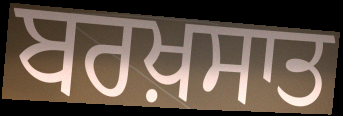
ਬਰਖ਼ਸਾਤ